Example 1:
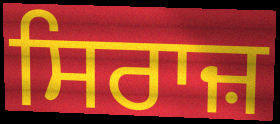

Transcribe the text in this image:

ਸਿਰਾਜ਼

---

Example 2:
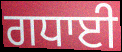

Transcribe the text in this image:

ਗਧਾਈ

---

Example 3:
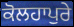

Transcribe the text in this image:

ਕੋਲਹਾਪੁਰੇ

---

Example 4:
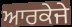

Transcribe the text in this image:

ਆਰਕੇਜੇ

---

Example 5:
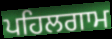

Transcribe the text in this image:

ਪਹਿਲਗਾਮ